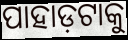
ପାହାଡ଼ଟାକୁ